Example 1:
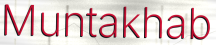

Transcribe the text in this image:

Muntakhab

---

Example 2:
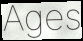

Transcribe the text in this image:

Ages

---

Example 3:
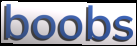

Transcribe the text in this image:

boobs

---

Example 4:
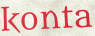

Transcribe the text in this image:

konta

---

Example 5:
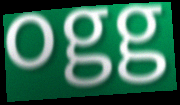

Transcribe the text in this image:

ogg